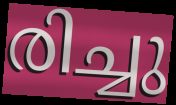
രിച്ചു